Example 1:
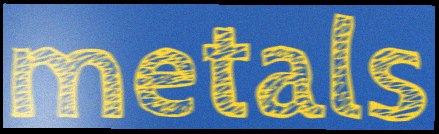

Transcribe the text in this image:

metals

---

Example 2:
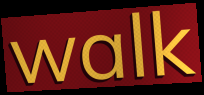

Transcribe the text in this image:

walk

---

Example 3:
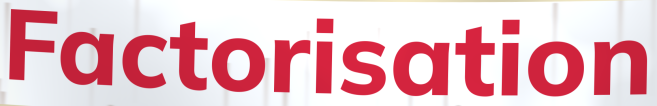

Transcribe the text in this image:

Factorisation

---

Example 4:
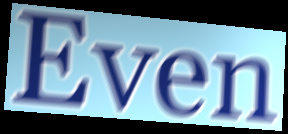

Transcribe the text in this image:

Even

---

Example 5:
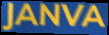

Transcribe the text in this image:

JANVA